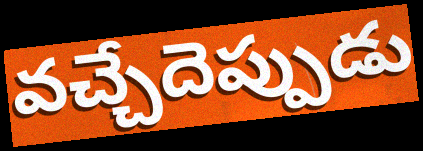
వచ్చేదెప్పుడు